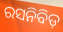
ରସନିବିଡ଼